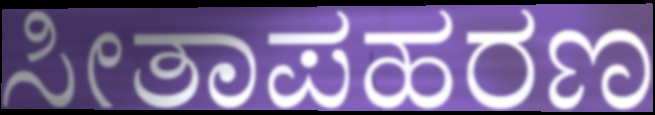
ಸೀತಾಪಹರಣ